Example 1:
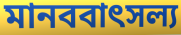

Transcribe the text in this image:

মানববাৎসল্য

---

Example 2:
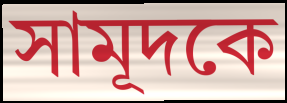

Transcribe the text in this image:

সামূদকে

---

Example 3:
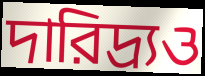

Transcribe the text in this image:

দারিদ্র্যও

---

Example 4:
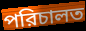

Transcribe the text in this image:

পরিচালত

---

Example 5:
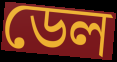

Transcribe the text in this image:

ডেল